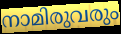
നാമിരുവരും